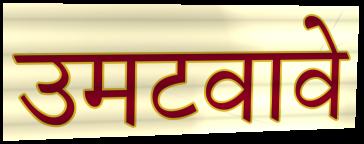
उमटवावे